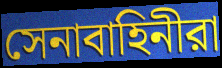
সেনাবাহিনীরা